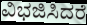
ವಿಭಜಿಸಿದರೆ